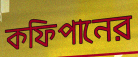
কফিপানের